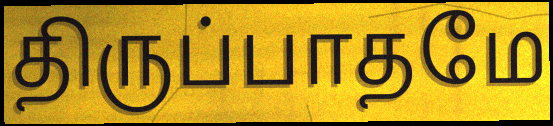
திருப்பாதமே